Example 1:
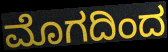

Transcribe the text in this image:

ಮೊಗದಿಂದ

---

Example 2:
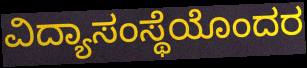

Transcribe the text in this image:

ವಿದ್ಯಾಸಂಸ್ಥೆಯೊಂದರ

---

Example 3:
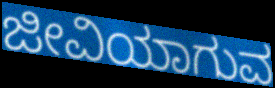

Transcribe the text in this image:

ಜೀವಿಯಾಗುವ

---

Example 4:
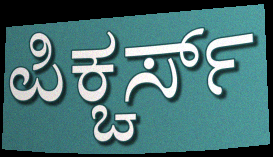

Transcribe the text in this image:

ಪಿಕ್ಚರ್ಸ್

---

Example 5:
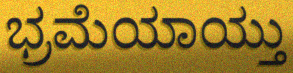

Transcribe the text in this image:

ಭ್ರಮೆಯಾಯ್ತು